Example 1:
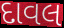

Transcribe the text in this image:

દાવલ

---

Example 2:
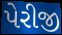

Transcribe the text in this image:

પેરીજી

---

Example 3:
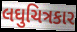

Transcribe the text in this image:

લઘુચિત્રકાર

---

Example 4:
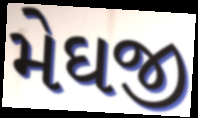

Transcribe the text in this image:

મેઘજી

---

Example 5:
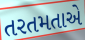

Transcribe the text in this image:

તરતમતાએ